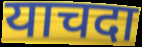
याचदा